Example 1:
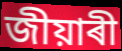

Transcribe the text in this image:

জীয়াৰী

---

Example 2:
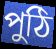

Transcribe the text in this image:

পুঠি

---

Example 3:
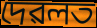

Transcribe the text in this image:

দেৱলত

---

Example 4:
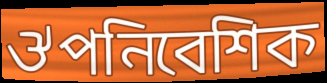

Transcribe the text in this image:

ঔপনিবেশিক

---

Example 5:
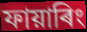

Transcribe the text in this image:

ফায়াৰিং